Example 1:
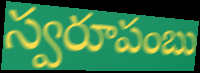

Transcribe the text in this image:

స్వరూపంబు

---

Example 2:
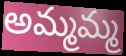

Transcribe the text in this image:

అమ్మమ్మ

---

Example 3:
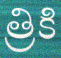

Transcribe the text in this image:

త్రికి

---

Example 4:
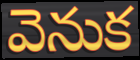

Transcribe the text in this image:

వెనుక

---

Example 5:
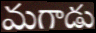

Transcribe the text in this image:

మగాడు